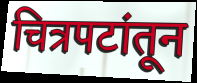
चित्रपटांतून